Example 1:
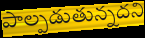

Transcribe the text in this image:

పాల్పడుతున్నదని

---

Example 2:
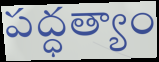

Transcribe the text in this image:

పద్ధత్యాం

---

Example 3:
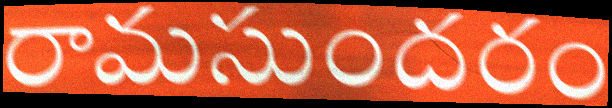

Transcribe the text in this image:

రామసుందరం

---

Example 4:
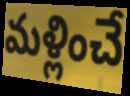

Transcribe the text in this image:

మళ్లించే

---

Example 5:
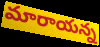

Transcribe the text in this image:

మారాయన్న